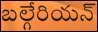
బల్గేరియన్